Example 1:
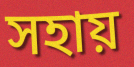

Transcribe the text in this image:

সহায়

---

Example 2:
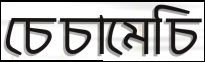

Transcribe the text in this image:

চেচামেচি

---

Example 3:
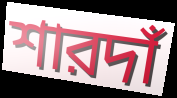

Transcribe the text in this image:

শারদাঁ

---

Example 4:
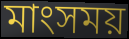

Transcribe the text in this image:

মাংসময়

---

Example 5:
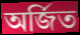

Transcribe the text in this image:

অর্জিত